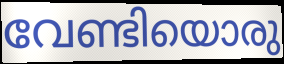
വേണ്ടിയൊരു